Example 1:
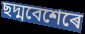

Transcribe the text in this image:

ছদ্মবেশেৰে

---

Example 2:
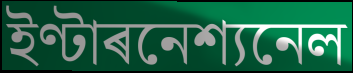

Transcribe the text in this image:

ইণ্টাৰনেশ্যনেল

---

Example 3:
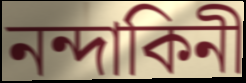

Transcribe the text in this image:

নন্দাকিনী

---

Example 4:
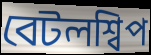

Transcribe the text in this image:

বেটলশ্বিপ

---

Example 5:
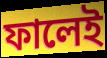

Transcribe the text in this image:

ফালেই